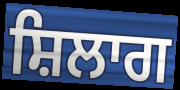
ਸ਼ਿਲਾਗ